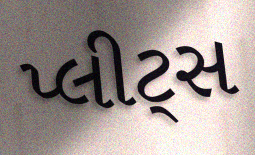
પ્લીટ્સ